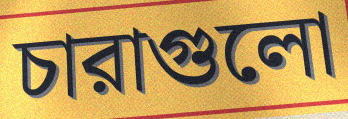
চারাগুলো